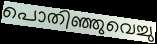
പൊതിഞ്ഞുവെച്ചു